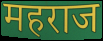
महराज